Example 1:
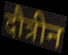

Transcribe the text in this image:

दौत्रीन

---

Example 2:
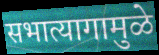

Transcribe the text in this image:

सभात्यागामुळे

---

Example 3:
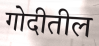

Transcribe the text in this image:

गोदीतील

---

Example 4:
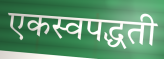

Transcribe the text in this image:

एकस्वपद्धती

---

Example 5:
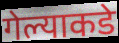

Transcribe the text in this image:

गेल्याकडे